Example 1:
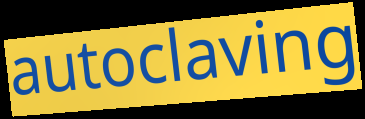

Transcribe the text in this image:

autoclaving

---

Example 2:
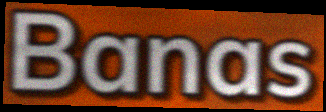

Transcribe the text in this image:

Banas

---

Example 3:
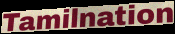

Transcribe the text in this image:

Tamilnation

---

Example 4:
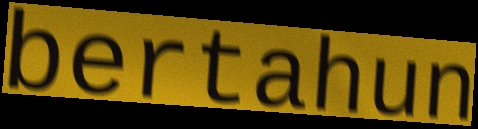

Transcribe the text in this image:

bertahun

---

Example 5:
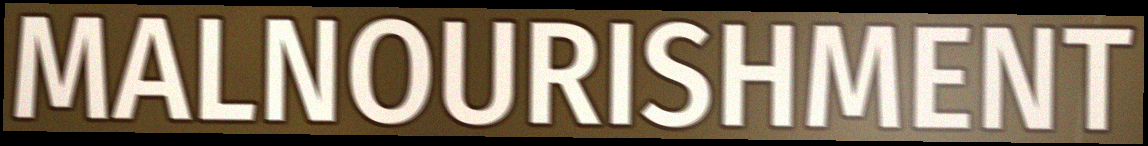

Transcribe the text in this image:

MALNOURISHMENT